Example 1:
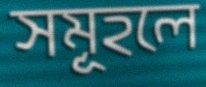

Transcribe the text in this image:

সমূহলে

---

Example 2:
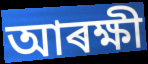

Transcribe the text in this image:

আৰক্ষী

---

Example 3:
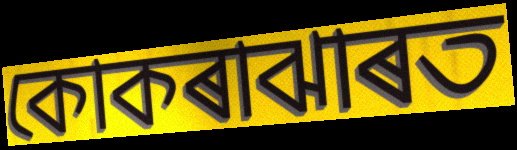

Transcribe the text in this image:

কোকৰাঝাৰত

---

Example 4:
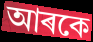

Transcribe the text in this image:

আৰকে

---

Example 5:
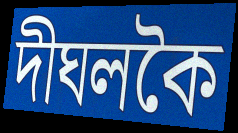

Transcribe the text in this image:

দীঘলকৈ